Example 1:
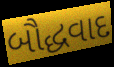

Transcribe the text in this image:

બૌદ્ધવાદ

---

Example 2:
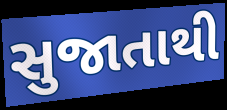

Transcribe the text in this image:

સુજાતાથી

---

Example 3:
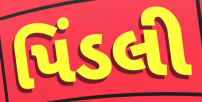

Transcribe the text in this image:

પિંડલી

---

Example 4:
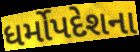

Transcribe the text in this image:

ધર્મોપદેશના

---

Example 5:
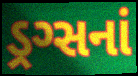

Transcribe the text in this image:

ડ્રગ્સનાં